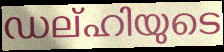
ഡല്ഹിയുടെ